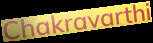
Chakravarthi